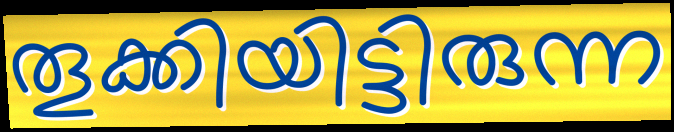
തൂക്കിയിട്ടിരുന്ന